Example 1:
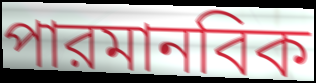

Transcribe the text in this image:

পারমানবিক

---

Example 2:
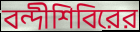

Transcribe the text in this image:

বন্দীশিবিরের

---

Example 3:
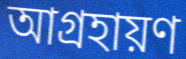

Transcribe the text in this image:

আগ্রহায়ণ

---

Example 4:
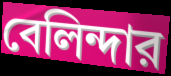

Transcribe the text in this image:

বেলিন্দার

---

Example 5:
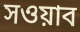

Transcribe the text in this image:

সওয়াব